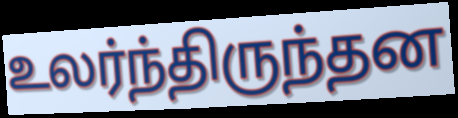
உலர்ந்திருந்தன